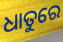
ଧାତୁରେ